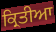
ਕ੍ਰਿਤੀਆ